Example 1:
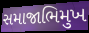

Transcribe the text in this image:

સમાજાભિમુખ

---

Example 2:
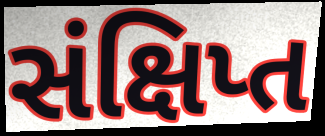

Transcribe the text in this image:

સંક્ષિપ્ત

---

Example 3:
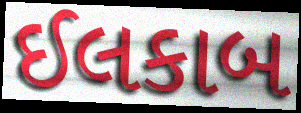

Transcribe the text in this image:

ઈલકાબ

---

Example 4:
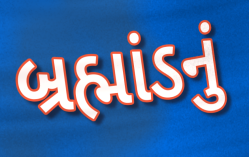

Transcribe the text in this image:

બ્રહ્માંડનું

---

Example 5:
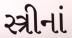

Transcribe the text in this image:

સ્ત્રીનાં